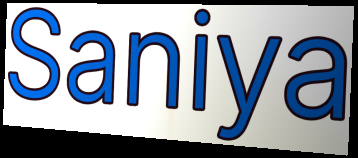
Saniya